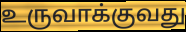
உருவாக்குவது